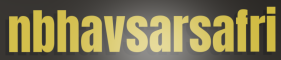
nbhavsarsafri